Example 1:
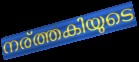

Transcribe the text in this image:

നര്ത്തകിയുടെ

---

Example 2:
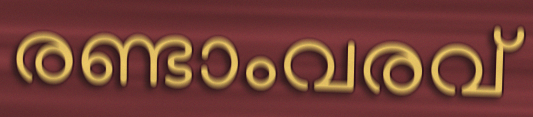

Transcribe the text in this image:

രണ്ടാംവരവ്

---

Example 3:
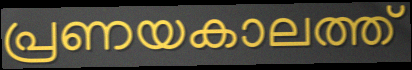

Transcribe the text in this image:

പ്രണയകാലത്ത്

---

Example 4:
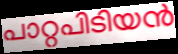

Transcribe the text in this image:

പാറ്റപിടിയൻ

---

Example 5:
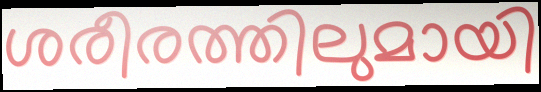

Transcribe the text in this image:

ശരീരത്തിലുമായി